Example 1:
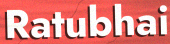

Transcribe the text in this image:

Ratubhai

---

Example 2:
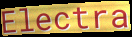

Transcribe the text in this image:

Electra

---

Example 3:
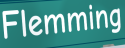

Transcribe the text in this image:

Flemming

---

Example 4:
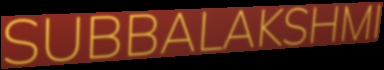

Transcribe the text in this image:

SUBBALAKSHMI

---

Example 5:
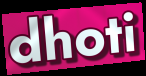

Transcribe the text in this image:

dhoti